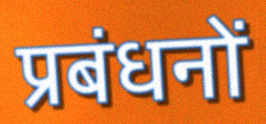
प्रबंधनों